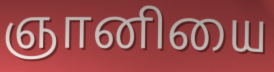
ஞானியை